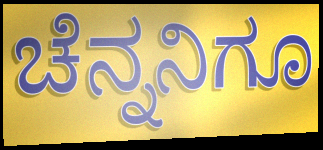
ಚೆನ್ನನಿಗೂ